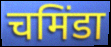
चमिंडा